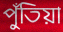
পুঁতিয়া